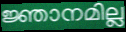
ജ്ഞാനമില്ല